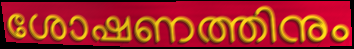
ശോഷണത്തിനും